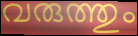
വരുത്തും